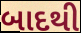
બાદથી